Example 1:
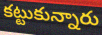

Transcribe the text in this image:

కట్టుకున్నారు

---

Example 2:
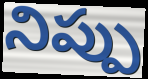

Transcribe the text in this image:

నిప్పు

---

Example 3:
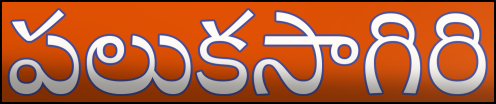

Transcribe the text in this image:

పలుకసాగిరి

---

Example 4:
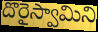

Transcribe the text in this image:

దొరైస్వామిని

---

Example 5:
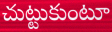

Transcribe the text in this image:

చుట్టుకుంటూ